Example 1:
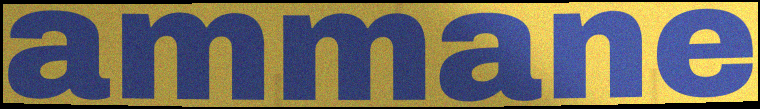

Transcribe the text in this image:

ammane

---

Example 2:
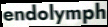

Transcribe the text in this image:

endolymph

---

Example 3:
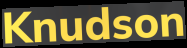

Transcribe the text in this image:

Knudson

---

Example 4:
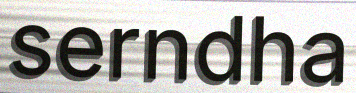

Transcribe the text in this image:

serndha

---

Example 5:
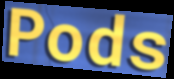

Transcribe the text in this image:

Pods